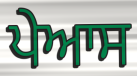
ਪੇਆਸ